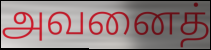
அவனைத்